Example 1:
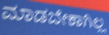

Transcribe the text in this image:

ಮಾಡಬೇಕಾಗಿಲ್ಲ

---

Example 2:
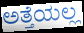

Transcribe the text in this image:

ಅತ್ತೆಯಲ್ಲ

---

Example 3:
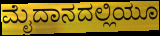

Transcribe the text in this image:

ಮೈದಾನದಲ್ಲಿಯೂ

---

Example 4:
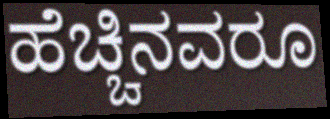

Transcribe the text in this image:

ಹೆಚ್ಚಿನವರೂ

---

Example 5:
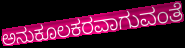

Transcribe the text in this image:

ಅನುಕೂಲಕರವಾಗುವಂತೆ